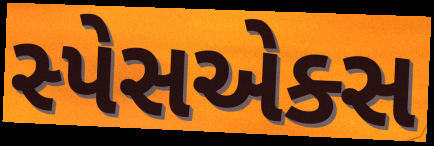
સ્પેસએક્સ